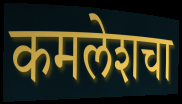
कमलेशचा